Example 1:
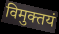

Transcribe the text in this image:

विमुक्तयं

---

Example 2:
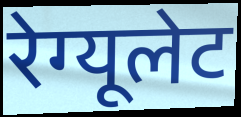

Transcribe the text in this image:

रेग्यूलेट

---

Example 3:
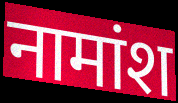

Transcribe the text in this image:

नामांश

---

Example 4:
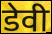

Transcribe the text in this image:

डेवी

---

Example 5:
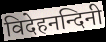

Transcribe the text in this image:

विदेहनन्दिनी